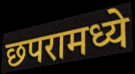
छपरामध्ये